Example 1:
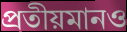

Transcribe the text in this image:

প্রতীয়মানও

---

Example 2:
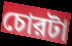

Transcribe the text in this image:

চোরটা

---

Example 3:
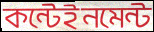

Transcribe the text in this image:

কন্টেইনমেন্ট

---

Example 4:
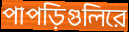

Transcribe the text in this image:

পাপড়িগুলিরে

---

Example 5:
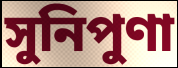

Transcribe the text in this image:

সুনিপুণা